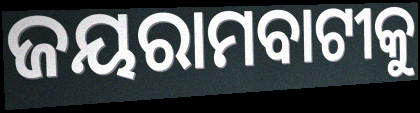
ଜୟରାମବାଟୀକୁ